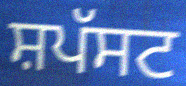
ਸ਼ਪੱਸਟ